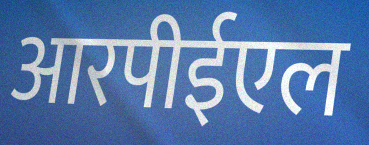
आरपीईएल